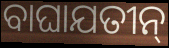
ବାଘାଯତୀନ୍